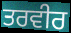
ਤਰਵੀਰ